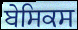
ਬੇਸਿਕਸ